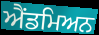
ਐਂਡਮਿਅਨ